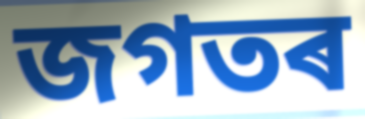
জগতৰ